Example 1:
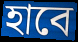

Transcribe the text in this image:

হাবে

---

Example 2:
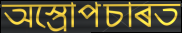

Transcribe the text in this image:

অস্ত্ৰোপচাৰত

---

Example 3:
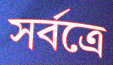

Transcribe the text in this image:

সৰ্বত্ৰে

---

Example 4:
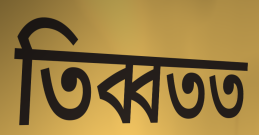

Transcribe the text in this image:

তিব্বতত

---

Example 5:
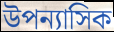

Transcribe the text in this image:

উপন্যাসিক